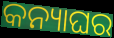
କନ୍ୟାଘର